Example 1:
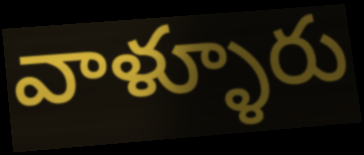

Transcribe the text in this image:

వాళ్ళూరు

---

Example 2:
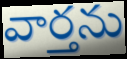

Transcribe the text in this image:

వార్తను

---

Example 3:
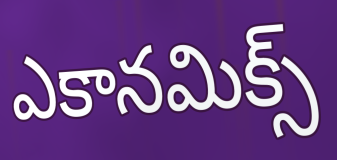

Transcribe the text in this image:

ఎకానమిక్స్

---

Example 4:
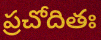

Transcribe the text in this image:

ప్రచోదితః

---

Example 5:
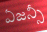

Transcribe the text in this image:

ఏజన్సీ